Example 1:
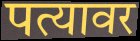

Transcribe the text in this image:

पत्यावर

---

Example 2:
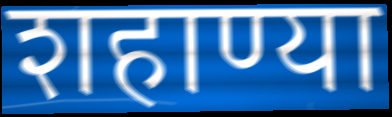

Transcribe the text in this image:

शहाण्या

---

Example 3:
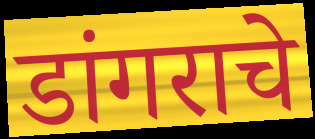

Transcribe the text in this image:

डांगराचे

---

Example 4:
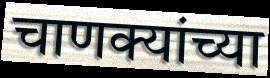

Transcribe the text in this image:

चाणक्यांच्या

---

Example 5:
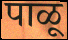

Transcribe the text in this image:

पाळू